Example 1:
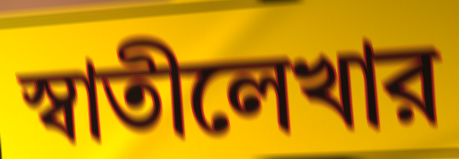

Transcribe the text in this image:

স্বাতীলেখার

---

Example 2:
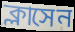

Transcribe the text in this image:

ক্লাসেন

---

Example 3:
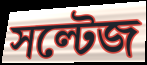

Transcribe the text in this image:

সল্টেজ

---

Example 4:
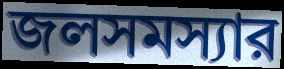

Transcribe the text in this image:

জলসমস্যার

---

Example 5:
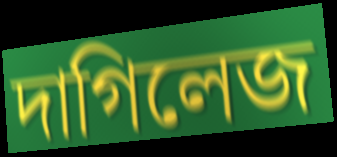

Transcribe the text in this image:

দাগিলেজ